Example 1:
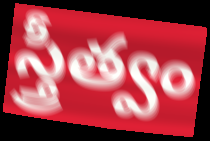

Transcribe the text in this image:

స్త్రీత్వం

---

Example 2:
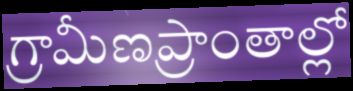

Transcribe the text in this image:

గ్రామీణప్రాంతాల్లో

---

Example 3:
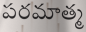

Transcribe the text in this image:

పరమాత్మ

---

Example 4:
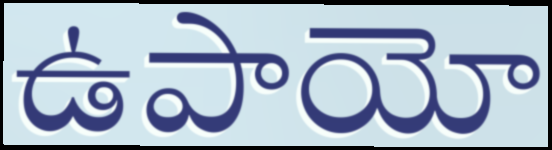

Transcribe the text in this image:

ఉపాయో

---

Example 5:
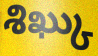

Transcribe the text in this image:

శిఖ్కు